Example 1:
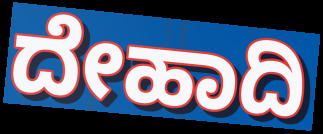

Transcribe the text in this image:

ದೇಹಾದಿ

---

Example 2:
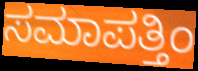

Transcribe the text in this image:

ಸಮಾಪತ್ತಿಂ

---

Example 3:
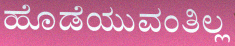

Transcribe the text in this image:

ಹೊಡೆಯುವಂತಿಲ್ಲ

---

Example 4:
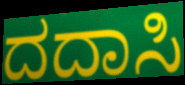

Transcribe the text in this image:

ದದಾಸಿ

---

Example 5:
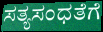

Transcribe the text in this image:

ಸತ್ಯಸಂಧತೆಗೆ